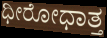
ಧೀರೋಧಾತ್ತ